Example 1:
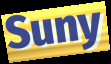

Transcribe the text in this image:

Suny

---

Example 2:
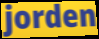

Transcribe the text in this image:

jorden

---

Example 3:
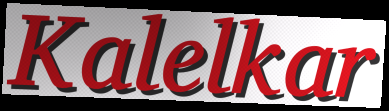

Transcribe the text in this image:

Kalelkar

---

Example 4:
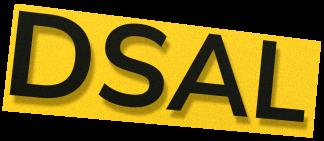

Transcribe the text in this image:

DSAL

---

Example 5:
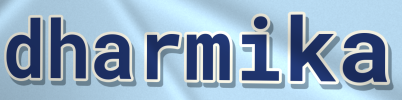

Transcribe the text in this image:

dharmika